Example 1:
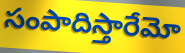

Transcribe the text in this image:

సంపాదిస్తారేమో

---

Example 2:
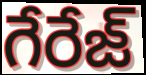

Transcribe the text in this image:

గేరేజ్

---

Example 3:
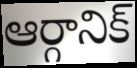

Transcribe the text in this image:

ఆర్గానిక్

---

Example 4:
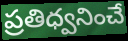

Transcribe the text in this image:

ప్రతిధ్వనించే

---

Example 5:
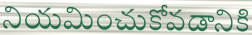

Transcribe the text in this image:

నియమించుకోవడానికి